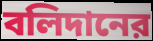
বলিদানের